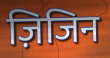
ज़िजिन